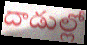
దాడుల్లో